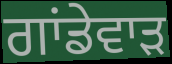
ਗਾਂਡੇਵਾੜ